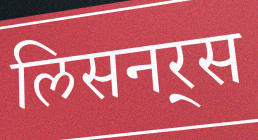
लिसनर्स